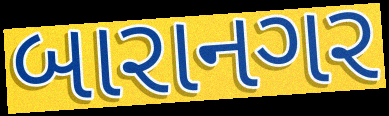
બારાનગર